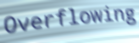
Overflowing